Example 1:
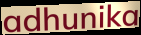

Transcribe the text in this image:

adhunika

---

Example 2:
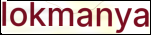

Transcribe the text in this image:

lokmanya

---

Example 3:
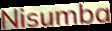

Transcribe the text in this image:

Nisumba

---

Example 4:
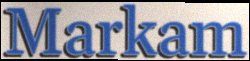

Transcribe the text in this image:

Markam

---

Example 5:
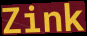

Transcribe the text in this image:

Zink